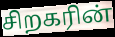
சிறகரின்